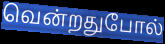
வென்றதுபோல்